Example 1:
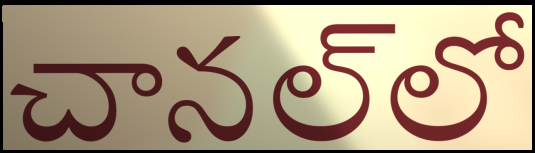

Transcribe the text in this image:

చానల్‌లో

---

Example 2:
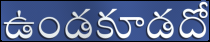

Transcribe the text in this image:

ఉండకూడదో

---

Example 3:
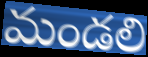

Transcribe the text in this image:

మండలి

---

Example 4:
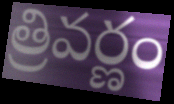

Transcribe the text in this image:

త్రివర్ణం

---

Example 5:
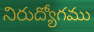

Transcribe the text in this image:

నిరుద్యోగము